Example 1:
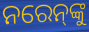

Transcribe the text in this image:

ନରେନ୍‍ଙ୍କୁ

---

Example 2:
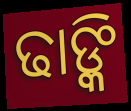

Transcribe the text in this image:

ଢାଙ୍କି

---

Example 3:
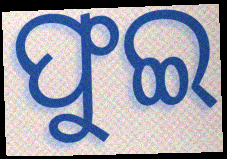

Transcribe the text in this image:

ଫୁଇ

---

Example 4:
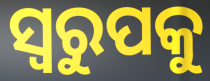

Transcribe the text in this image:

ସ୍ଵରୁପକୁ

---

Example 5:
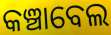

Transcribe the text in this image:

କଞ୍ଚାବେଲ